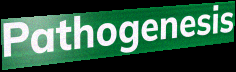
Pathogenesis